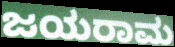
ಜಯರಾಮ